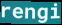
rengi